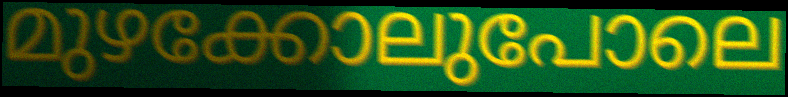
മുഴക്കോലുപോലെ